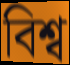
বিশ্ব